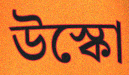
উস্কো